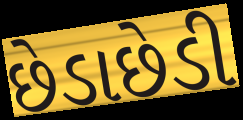
છેડાછેડી